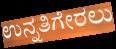
ಉನ್ನತಿಗೇರಲು